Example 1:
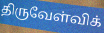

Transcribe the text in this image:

திருவேள்விக்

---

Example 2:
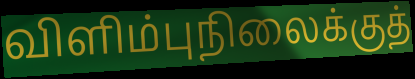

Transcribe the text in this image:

விளிம்புநிலைக்குத்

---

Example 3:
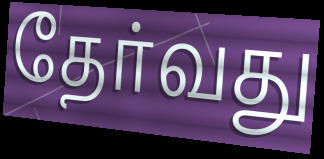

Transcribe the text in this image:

தேர்வது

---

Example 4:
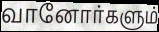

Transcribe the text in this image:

வானோர்களும்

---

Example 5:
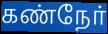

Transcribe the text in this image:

கண்நேர்